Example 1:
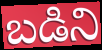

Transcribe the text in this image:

బడిని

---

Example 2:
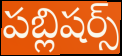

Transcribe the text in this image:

పబ్లిషర్స్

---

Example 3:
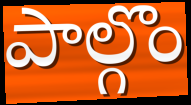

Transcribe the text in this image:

పాల్గొం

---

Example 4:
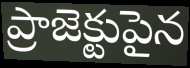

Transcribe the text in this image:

ప్రాజెక్టుపైన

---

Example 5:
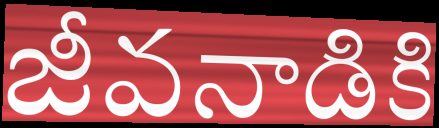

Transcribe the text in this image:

జీవనాడికి